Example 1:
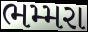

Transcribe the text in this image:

ભમ્મરા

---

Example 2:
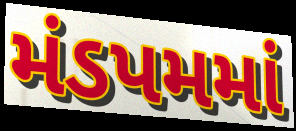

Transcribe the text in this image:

મંડપમમાં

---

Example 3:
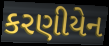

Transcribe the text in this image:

કરણીયેન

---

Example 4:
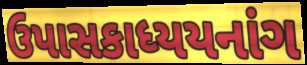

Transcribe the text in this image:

ઉપાસકાધ્યયનાંગ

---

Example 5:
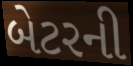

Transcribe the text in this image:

બેટરની